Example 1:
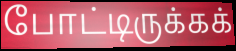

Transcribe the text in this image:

போட்டிருக்கக்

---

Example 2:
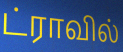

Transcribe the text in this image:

ட்ராவில்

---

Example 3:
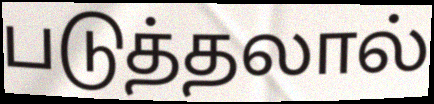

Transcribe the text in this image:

படுத்தலால்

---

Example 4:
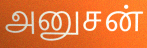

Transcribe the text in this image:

அனுசன்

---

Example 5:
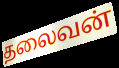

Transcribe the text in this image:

தலைவன்